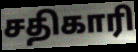
சதிகாரி